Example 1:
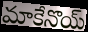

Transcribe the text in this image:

మాకేనొయ్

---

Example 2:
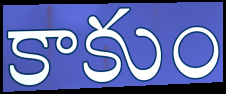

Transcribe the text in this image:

కాకుం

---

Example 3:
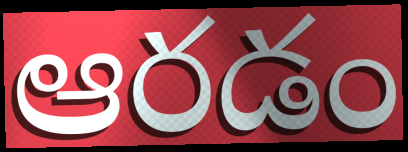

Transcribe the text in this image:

ఆరడం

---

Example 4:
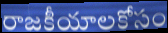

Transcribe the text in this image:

రాజకీయాలకోసం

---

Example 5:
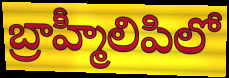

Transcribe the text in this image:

బ్రాహ్మీలిపిలో